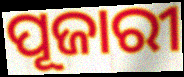
ପୂଜାରୀ